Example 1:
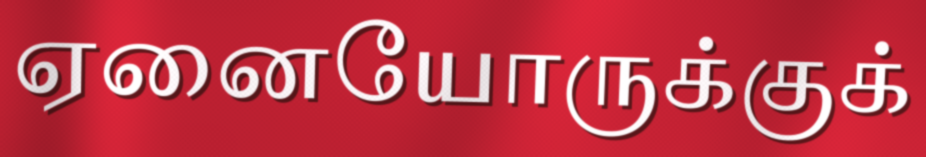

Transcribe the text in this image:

ஏனையோருக்குக்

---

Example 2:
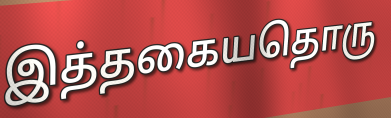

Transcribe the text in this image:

இத்தகையதொரு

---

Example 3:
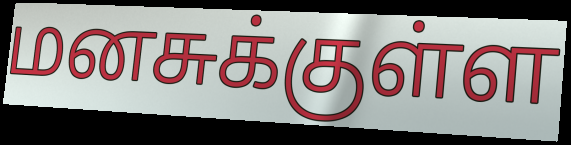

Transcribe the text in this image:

மனசுக்குள்ள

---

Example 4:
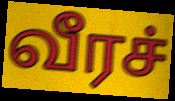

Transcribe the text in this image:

வீரச்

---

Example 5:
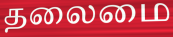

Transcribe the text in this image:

தலைமை